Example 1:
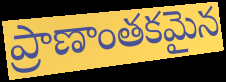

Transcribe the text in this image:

ప్రాణాంతకమైన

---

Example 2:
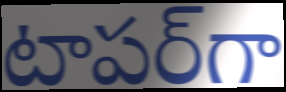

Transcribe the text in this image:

టాపర్‌గా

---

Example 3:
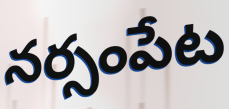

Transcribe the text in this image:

నర్సంపేట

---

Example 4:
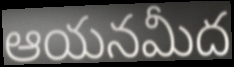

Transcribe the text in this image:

ఆయనమీద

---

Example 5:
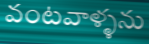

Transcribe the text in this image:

వంటవాళ్ళను